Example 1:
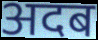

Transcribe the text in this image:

अदब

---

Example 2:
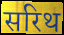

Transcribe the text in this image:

सरिथ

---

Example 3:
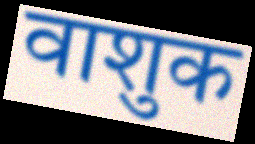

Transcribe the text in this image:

वाशुक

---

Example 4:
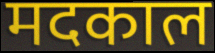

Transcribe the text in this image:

मदकाल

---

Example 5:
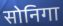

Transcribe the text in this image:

सोनिगा